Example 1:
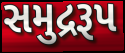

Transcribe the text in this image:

સમુદ્રરૂપ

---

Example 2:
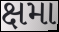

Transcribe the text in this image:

ક્ષમા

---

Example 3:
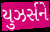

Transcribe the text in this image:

યુઝર્સને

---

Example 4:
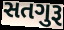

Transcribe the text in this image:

સતગુરૂ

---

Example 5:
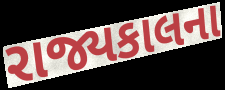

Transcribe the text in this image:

રાજ્યકાલના